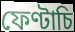
ফেণ্টাচি